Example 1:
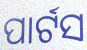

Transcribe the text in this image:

ପାର୍ଟସ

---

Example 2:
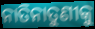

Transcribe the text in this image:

ନାତିନାତୁଣୀକୁ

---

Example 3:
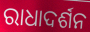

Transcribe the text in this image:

ରାଧାଦର୍ଶନ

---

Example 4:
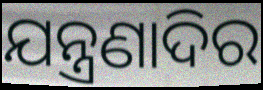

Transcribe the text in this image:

ଯନ୍ତ୍ରଣାଦିର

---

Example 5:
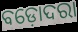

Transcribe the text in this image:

ବଡ଼ୋଦରା